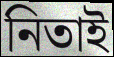
নিতাই